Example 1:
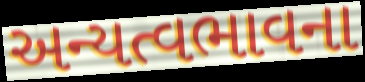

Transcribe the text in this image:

અન્યત્વભાવના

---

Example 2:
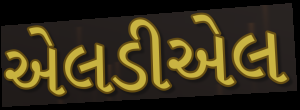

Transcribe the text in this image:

એલડીએલ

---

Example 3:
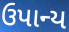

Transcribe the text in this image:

ઉપાન્ય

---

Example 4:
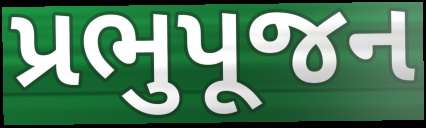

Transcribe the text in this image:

પ્રભુપૂજન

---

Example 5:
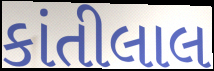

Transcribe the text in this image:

કાંતીલાલ